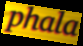
phala